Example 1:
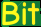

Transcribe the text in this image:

Bit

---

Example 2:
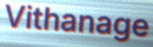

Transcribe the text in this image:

Vithanage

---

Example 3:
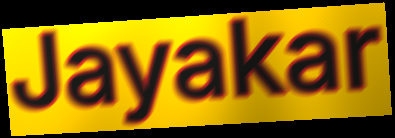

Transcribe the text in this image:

Jayakar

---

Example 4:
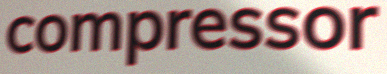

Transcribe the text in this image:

compressor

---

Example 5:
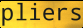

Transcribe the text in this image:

pliers